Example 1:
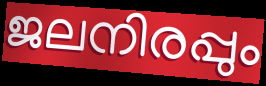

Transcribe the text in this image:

ജലനിരപ്പും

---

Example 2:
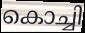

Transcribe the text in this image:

കൊച്ചി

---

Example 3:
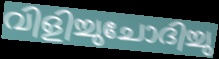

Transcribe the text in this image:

വിളിച്ചുചോദിച്ചു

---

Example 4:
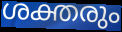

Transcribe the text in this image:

ശക്തരും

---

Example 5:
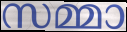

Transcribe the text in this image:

സമ്മാ